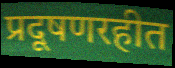
प्रदूषणरहीत